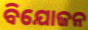
ବିଯୋଜନ